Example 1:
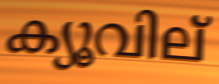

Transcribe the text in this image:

ക്യൂവില്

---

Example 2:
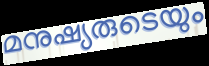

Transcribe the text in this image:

മനുഷ്യരുടെയും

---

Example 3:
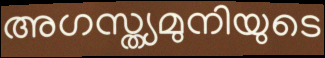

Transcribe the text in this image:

അഗസ്ത്യമുനിയുടെ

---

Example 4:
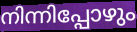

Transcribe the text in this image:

നിന്നിപ്പോഴും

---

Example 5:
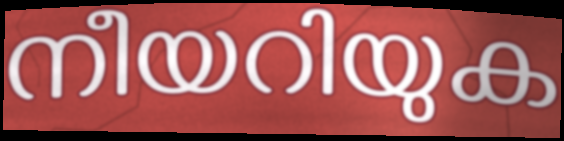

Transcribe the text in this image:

നീയറിയുക